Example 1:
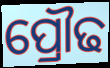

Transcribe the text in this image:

ପ୍ରୌଢ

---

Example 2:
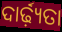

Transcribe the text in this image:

ଦାର୍ଢ଼୍ୟତା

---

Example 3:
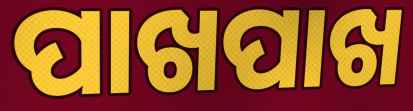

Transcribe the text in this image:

ପାଖପାଖ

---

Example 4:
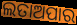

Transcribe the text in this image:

ଲତାଅପାର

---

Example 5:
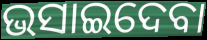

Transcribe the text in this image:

ଭସାଇଦେବା